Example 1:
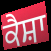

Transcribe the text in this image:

ਕੈਸ਼ਾ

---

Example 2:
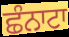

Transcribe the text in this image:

ਛੰਨਾਟਾ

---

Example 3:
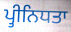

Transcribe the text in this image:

ਪ੍ਤੀਨਿਧਤਾ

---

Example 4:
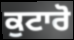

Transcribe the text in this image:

ਕੁਟਾਰੋ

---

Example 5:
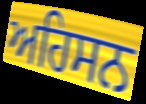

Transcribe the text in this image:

ਅਹਿਸਨ